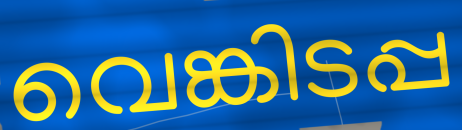
വെങ്കിടപ്പ